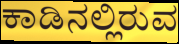
ಕಾಡಿನಲ್ಲಿರುವ